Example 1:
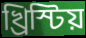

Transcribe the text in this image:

খ্রিস্টিয়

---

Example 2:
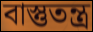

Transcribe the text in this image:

বাস্তুতন্ত্র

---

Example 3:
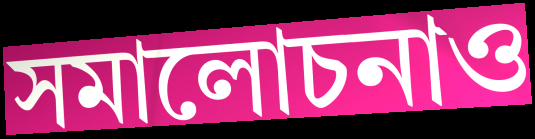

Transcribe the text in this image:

সমালোচনাও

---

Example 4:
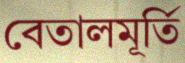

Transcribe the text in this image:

বেতালমূর্তি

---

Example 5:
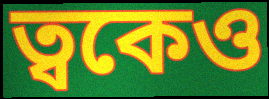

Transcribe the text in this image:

ত্বকেও